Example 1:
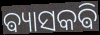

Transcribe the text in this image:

ଵ୍ୟାସକଵି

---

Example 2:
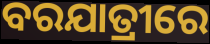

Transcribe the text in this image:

ବରଯାତ୍ରୀରେ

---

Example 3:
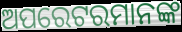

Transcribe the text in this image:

ଅପରେଟରମାନଙ୍କ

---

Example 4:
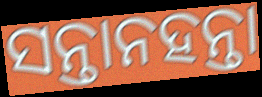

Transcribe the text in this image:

ସନ୍ତାନହନ୍ତା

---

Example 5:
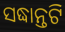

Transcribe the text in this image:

ସଦ୍ଧାନ୍ତଟି